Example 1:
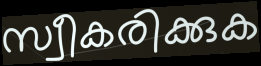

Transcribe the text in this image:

സ്വീകരിക്കുക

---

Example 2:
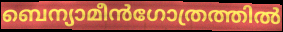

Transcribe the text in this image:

ബെന്യാമീൻഗോത്രത്തിൽ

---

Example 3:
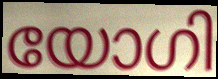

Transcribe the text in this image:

യോഗി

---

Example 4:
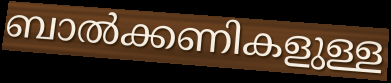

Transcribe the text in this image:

ബാൽക്കണികളുള്ള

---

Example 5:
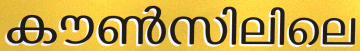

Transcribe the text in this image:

കൗൺസിലിലെ